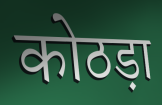
कोठड़ा